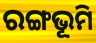
ରଙ୍ଗଭୂମି